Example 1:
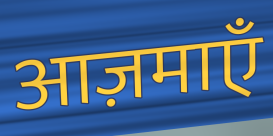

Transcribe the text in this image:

आज़माएँ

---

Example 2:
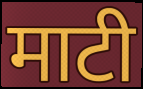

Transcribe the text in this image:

माटी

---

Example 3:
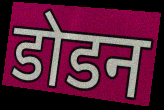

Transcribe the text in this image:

डोडन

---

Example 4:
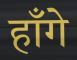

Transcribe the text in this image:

हाँगे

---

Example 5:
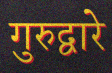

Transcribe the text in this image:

गुरुद्वारे